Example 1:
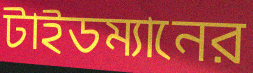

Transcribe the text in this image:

টাইডম্যানের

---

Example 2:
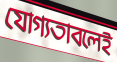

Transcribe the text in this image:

যোগ্যতাবলেই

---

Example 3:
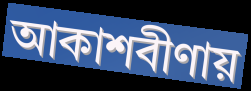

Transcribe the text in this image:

আকাশবীণায়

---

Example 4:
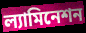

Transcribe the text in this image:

ল্যামিনেশন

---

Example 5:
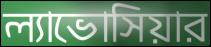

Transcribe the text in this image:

ল্যাভোসিয়ার